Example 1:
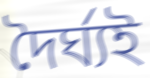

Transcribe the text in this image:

দৈৰ্ঘ্যই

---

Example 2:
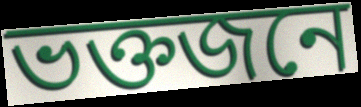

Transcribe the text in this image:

ভক্তজনে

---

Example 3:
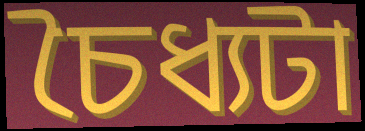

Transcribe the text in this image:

চৈধ্যটা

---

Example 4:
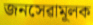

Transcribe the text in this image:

জনসেৱামূলক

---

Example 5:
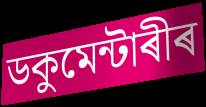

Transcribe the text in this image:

ডকুমেন্টাৰীৰ